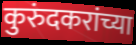
कुरुंदकरांच्या